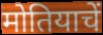
मोतियाचें